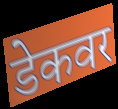
डेकवर